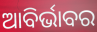
ଆବିର୍ଭାବର